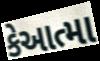
કેઆત્મા